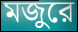
মজুরে